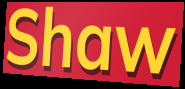
Shaw